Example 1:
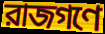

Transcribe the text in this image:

রাজগণে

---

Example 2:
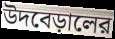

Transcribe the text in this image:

উদবেড়ালের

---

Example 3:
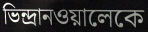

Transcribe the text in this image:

ভিন্দ্রানওয়ালেকে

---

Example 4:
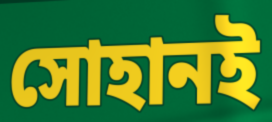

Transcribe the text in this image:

সোহানই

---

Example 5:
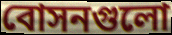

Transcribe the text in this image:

বোসনগুলো